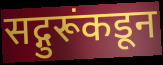
सद्गुरूंकडून